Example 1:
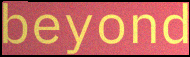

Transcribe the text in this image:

beyond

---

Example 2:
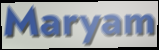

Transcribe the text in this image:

Maryam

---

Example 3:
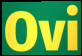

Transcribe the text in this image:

Ovi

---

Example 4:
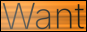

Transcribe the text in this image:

Want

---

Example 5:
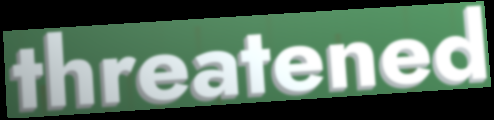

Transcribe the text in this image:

threatened